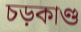
চড়কাণ্ড